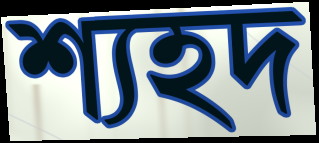
শ্যহদ